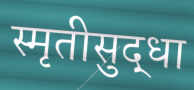
स्मृतीसुद्धा